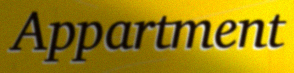
Appartment